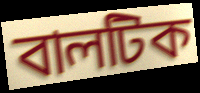
বালটিক